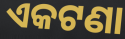
ଏକଟଣା